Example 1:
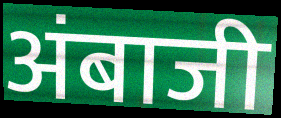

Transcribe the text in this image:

अंबाजी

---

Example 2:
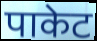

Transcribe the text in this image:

पाकेट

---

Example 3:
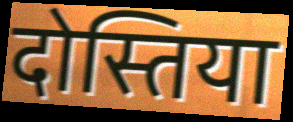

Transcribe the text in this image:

दोस्तिया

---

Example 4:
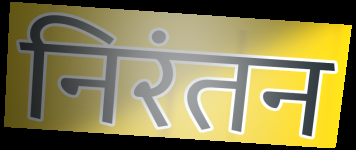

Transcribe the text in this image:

निरंतन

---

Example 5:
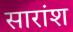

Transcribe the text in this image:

सारांश